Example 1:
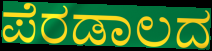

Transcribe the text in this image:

ಪೆರಡಾಲದ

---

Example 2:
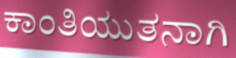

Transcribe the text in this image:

ಕಾಂತಿಯುತನಾಗಿ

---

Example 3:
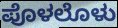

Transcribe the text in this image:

ಪೊಳಲೊಳು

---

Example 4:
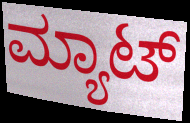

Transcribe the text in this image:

ಮ್ಯಾಟ್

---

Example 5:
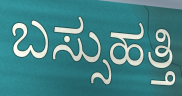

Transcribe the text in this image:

ಬಸ್ಸುಹತ್ತಿ